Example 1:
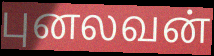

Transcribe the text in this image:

புனலவன்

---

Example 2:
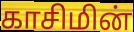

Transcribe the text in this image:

காசிமின்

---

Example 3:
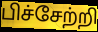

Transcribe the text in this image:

பிச்சேற்றி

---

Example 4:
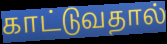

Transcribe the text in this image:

காட்டுவதால்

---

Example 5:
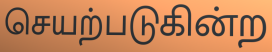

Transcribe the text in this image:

செயற்படுகின்ற